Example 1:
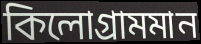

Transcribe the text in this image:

কিলোগ্ৰামমান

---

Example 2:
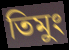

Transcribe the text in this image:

তিমুং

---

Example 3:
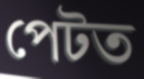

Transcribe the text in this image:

পেটত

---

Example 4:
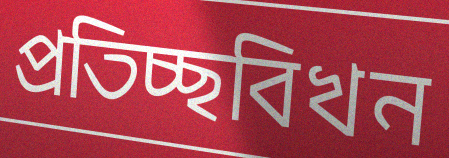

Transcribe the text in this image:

প্ৰতিচ্ছবিখন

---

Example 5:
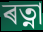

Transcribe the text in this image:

ৰত্না